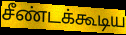
சீண்டக்கூடிய